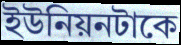
ইউনিয়নটাকে